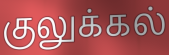
குலுக்கல்